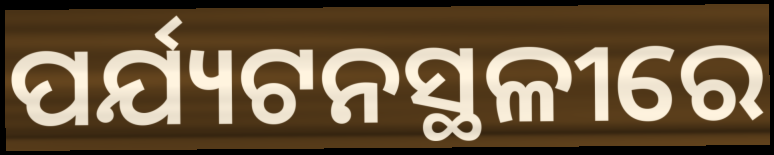
ପର୍ଯ୍ୟଟନସ୍ଥଳୀରେ